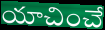
యాచించే